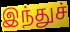
இந்துச்